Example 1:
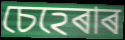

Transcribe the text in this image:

চেহেৰাৰ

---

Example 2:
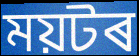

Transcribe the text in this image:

ময়টৰ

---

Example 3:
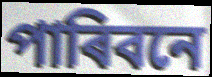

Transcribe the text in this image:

পাৰিবনে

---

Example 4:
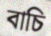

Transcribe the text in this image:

বাচি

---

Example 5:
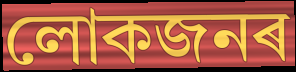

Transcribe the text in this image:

লোকজনৰ